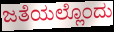
ಜತೆಯಲ್ಲೊಂದು